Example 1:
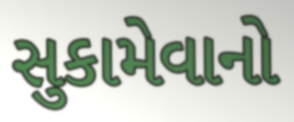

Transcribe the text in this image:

સુકામેવાનો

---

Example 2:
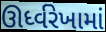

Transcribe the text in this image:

ઊર્ધ્વરેખામાં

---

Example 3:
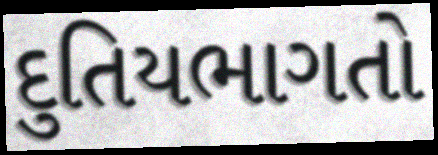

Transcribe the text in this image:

દુતિયભાગતો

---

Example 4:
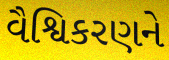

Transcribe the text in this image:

વૈશ્વિકરણને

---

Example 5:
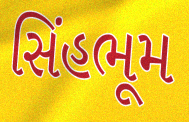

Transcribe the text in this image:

સિંહભૂમ